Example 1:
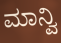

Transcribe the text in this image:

ಮಾನ್ವಿ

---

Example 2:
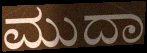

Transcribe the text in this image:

ಮುದಾ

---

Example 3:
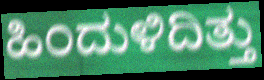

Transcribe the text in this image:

ಹಿಂದುಳಿದಿತ್ತು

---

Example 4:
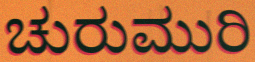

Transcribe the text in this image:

ಚುರುಮುರಿ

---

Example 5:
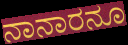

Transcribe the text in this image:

ನಾನಾರನೂ